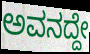
ಅವನದ್ದೇ